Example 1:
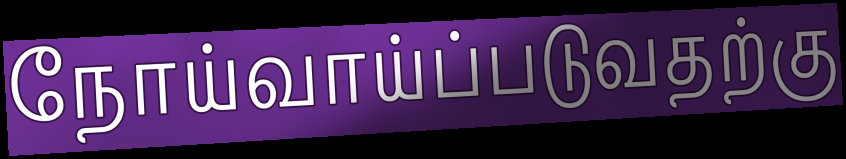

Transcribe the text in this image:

நோய்வாய்ப்படுவதற்கு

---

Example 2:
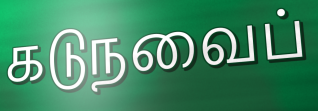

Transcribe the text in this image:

கடுநவைப்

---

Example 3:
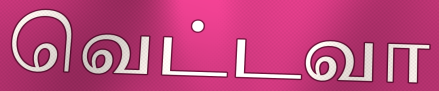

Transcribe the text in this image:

வெட்டவா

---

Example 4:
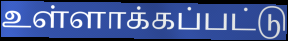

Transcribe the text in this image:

உள்ளாக்கப்பட்டு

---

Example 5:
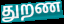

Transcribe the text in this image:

துறண